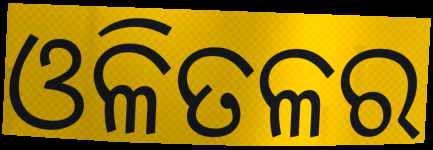
ଓଳିତଳର